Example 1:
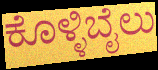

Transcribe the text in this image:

ಕೊಳ್ಳಿಬೈಲು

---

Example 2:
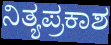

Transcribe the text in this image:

ನಿತ್ಯಪ್ರಕಾಶ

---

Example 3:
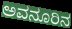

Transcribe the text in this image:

ಅವನೂರಿನ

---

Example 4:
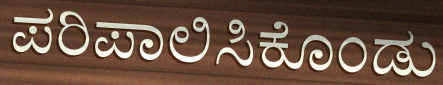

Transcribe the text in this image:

ಪರಿಪಾಲಿಸಿಕೊಂಡು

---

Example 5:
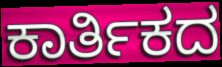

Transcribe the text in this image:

ಕಾರ್ತಿಕದ